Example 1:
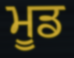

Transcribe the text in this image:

ਮੂਡ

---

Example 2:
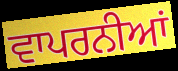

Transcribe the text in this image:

ਵਾਪਰਨੀਆਂ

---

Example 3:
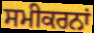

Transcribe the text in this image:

ਸਮੀਕਰਨਾਂ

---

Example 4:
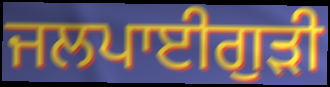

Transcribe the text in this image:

ਜਲਪਾਈਗੁਡ਼ੀ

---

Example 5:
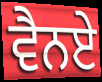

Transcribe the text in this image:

ਵੈਨਏ